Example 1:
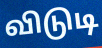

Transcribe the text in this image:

விடுடி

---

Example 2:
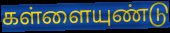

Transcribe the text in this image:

கள்ளையுண்டு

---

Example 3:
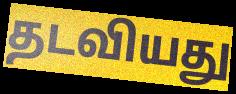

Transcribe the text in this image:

தடவியது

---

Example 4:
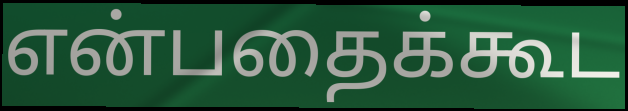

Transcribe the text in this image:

என்பதைக்கூட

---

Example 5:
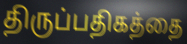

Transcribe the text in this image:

திருப்பதிகத்தை